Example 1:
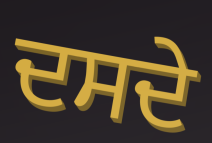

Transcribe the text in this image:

ਦਸਦੇ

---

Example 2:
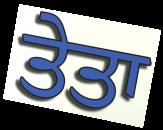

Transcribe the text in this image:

ਤੇਤਾ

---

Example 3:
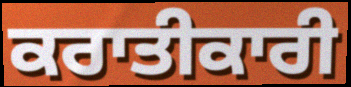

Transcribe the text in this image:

ਕਰਾਤੀਕਾਰੀ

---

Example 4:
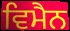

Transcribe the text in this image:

ਵਿਮੈਨ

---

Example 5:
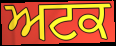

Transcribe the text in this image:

ਅਟਕ